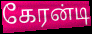
கேரன்டி